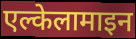
एल्केलामाइन